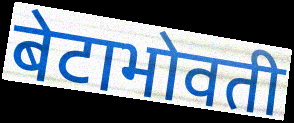
बेटाभोवती